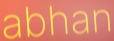
abhan